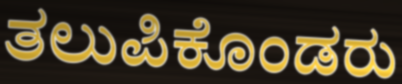
ತಲುಪಿಕೊಂಡರು